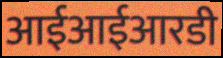
आईआईआरडी